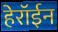
हेरॉईन